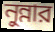
নুন্নার